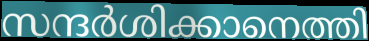
സന്ദർശിക്കാനെത്തി